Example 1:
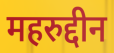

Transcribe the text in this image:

महरुद्दीन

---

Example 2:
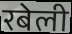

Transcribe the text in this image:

रबेली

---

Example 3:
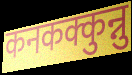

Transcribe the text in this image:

कनकक्कुन्नु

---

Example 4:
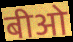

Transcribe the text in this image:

बीओ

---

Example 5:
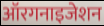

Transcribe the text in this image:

ऑरगनाइजेशन